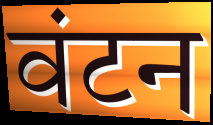
वंटन